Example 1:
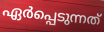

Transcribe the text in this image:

ഏർപ്പെടുന്നത്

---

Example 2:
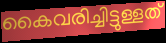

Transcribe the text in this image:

കൈവരിച്ചിട്ടുള്ളത്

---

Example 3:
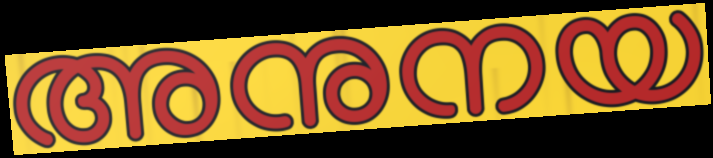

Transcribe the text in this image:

അനുനയ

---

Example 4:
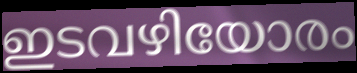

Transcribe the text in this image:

ഇടവഴിയോരം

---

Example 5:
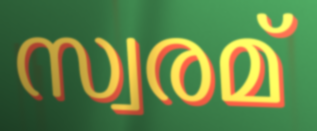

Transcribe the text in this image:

സ്വരമ്